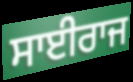
ਸਾਈਰਾਜ